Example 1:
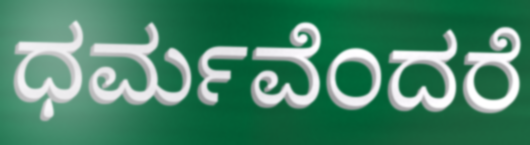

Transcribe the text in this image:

ಧರ್ಮವೆಂದರೆ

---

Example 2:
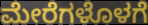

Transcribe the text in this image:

ಮೇರೆಗಳೊಳಗೆ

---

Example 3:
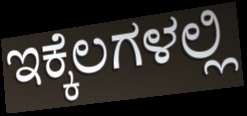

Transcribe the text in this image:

ಇಕ್ಕೆಲಗಳಲ್ಲಿ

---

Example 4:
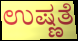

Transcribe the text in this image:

ಉಷ್ಣತೆ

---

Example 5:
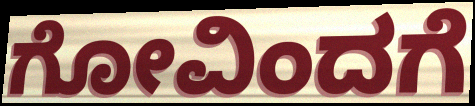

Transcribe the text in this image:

ಗೋವಿಂದಗೆ